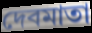
দেবমাতা